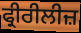
ਫ੍ਰੀਰੀਲੀਜ਼